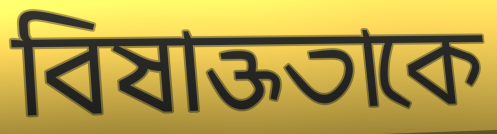
বিষাক্ততাকে